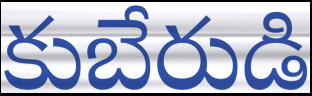
కుబేరుడి